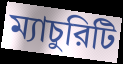
ম্যাচুরিটি